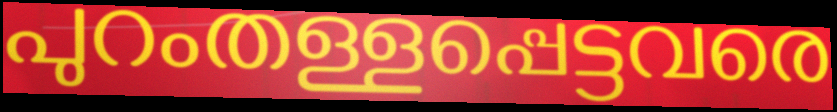
പുറംതള്ളപ്പെട്ടവരെ